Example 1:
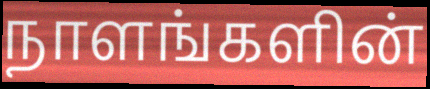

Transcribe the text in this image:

நாளங்களின்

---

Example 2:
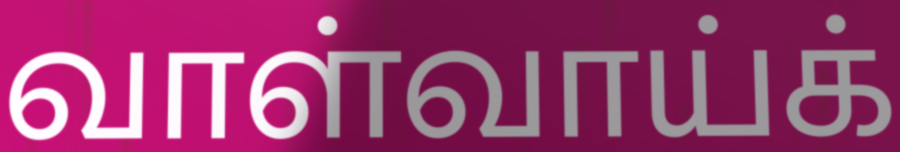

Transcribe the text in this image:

வாள்வாய்க்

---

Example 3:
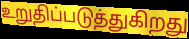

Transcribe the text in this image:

உறுதிப்படுத்துகிறது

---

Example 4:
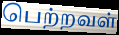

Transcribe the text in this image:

பெற்றவள்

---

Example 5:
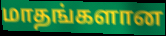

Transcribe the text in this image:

மாதங்களான